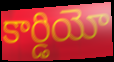
కార్డియో